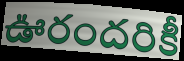
ఊరందరికీ